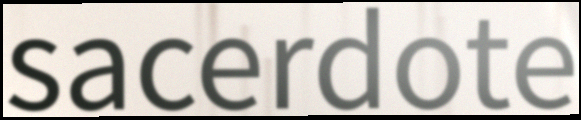
sacerdote